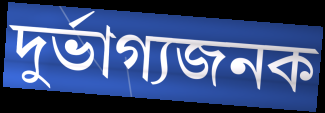
দুর্ভাগ্যজনক